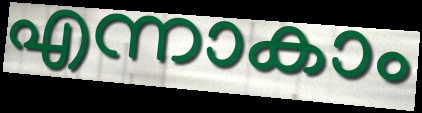
എന്നാകാം